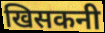
खिसकनी